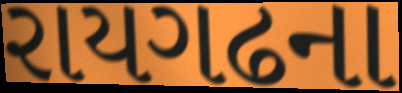
રાયગઢના